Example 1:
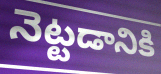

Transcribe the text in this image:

నెట్టడానికి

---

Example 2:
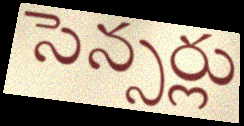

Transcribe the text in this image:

సెన్సర్లు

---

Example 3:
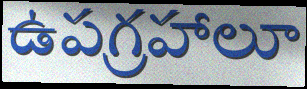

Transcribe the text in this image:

ఉపగ్రహాలూ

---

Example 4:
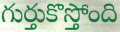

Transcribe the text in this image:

గుర్తుకొస్తోంది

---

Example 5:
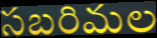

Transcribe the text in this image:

సబరిమల